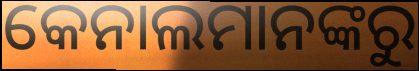
କେନାଲମାନଙ୍କରୁ